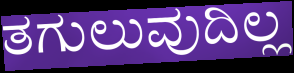
ತಗುಲುವುದಿಲ್ಲ